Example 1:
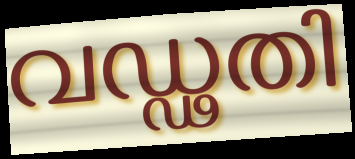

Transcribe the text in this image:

വഡ്ഢതി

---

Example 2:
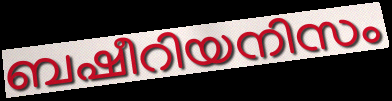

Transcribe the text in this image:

ബഷീറിയനിസം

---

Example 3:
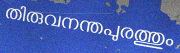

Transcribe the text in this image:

തിരുവനന്തപുരത്തും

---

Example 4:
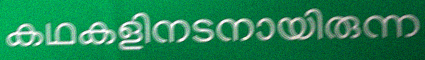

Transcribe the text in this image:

കഥകളിനടനായിരുന്ന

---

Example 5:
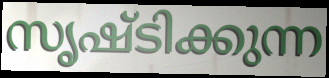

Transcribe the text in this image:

സൃഷ്ടിക്കുന്ന